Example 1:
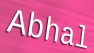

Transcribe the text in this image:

Abhal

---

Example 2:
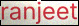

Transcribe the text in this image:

ranjeet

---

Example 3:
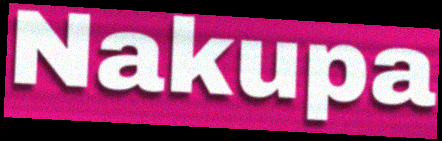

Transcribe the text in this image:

Nakupa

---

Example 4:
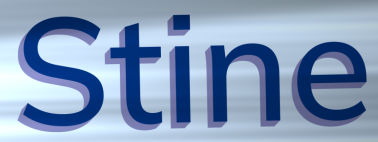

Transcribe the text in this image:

Stine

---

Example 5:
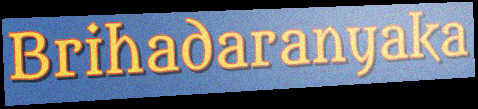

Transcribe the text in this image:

Brihadaranyaka